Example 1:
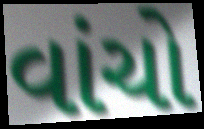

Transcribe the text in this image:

વાંચો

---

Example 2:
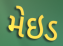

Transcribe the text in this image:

મેઇડ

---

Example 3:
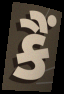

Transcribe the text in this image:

કૈં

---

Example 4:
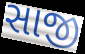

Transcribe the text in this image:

સાજી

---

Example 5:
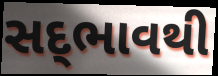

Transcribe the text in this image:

સદ્‍ભાવથી